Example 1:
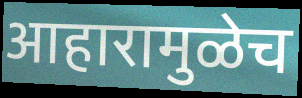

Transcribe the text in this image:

आहारामुळेच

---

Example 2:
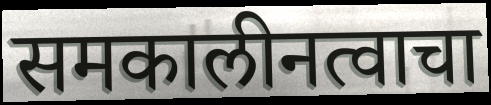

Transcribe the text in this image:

समकालीनत्वाचा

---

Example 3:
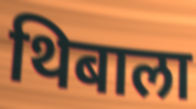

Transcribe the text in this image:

थिबाला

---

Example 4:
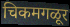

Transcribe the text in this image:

चिकमगळूर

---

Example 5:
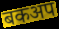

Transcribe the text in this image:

बकअप